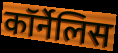
कॉर्नेलिस